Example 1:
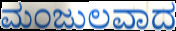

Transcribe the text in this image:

ಮಂಜುಲವಾದ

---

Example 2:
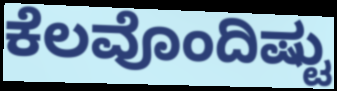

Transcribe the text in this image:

ಕೆಲವೊಂದಿಷ್ಟು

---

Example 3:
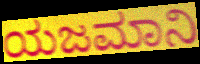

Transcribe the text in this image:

ಯಜಮಾನಿ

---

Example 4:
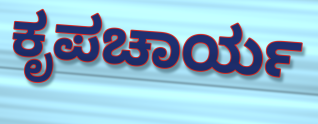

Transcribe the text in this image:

ಕೃಪಚಾರ್ಯ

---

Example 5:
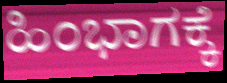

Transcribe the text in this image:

ಹಿಂಭಾಗಕ್ಕೆ